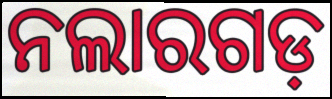
ନଲାରଗଡ଼